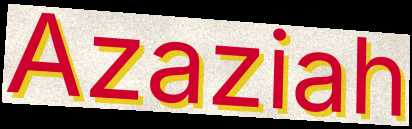
Azaziah